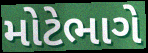
મોટેભાગે